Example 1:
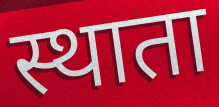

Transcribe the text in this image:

स्थाता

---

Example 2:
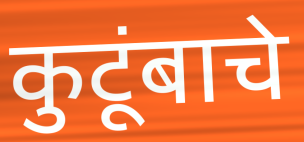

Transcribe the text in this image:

कुटूंबाचे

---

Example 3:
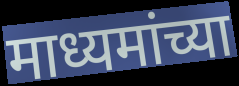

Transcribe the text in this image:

माध्यमांच्या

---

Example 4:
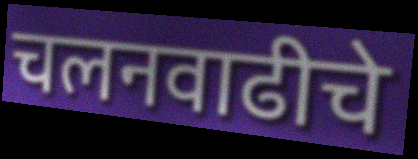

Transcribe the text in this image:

चलनवाढीचे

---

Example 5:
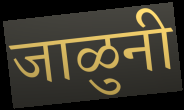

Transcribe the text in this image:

जाळुनी